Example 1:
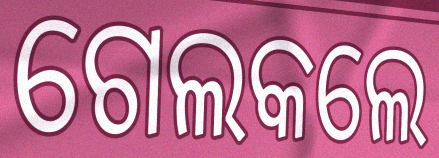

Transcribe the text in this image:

ଗେଲକଲେ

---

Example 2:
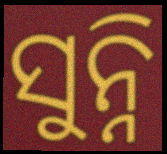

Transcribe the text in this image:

ସୁନ୍ନି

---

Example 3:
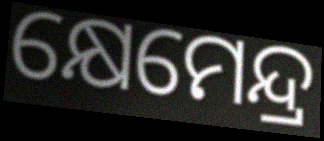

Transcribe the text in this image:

କ୍ଷେମେନ୍ଦ୍ର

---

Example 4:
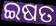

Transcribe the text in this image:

ଇଷତ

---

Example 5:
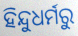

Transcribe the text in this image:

ହିନ୍ଦୁଧର୍ମରୁ